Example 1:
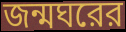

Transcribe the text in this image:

জন্মঘরের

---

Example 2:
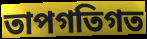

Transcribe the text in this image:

তাপগতিগত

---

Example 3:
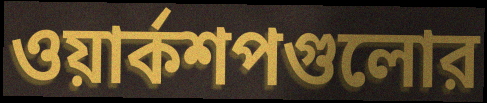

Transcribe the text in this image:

ওয়ার্কশপগুলোর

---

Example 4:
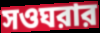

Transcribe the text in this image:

সওঘরার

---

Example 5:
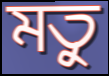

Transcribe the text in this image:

মতু